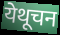
येथूचन